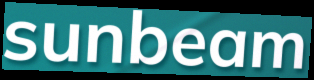
sunbeam